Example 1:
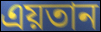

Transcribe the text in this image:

এয়তান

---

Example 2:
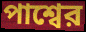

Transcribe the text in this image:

পাশ্বের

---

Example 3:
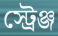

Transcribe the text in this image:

স্ট্রেঞ্জ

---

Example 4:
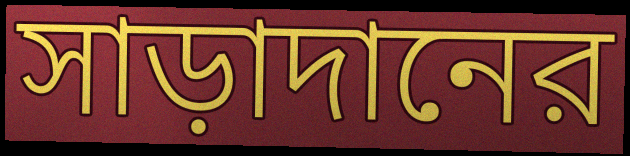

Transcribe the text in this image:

সাড়াদানের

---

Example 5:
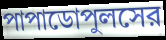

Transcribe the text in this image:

পাপাডোপুলসের